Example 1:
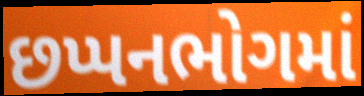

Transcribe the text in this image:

છપ્પનભોગમાં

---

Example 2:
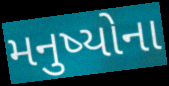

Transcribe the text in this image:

મનુષ્યોના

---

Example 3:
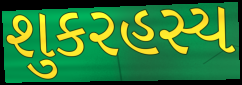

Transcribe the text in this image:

શુકરહસ્ય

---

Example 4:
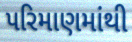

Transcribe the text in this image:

પરિમાણમાંથી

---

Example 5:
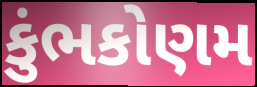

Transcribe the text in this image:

કુંભકોણમ